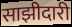
साझीदारी